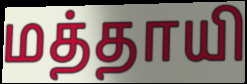
மத்தாயி